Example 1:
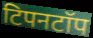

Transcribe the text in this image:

टिपनटॉप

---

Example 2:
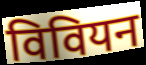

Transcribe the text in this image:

विवियन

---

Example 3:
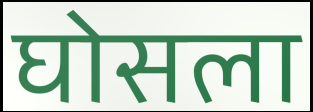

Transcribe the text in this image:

घोसला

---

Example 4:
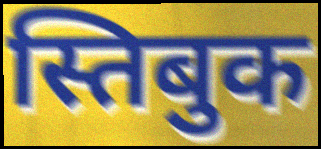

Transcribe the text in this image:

स्तिबुक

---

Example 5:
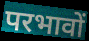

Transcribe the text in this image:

परभावों